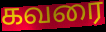
கவரை